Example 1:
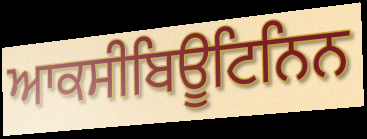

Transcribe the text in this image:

ਆਕਸੀਬਿਊਟਿਨਿਨ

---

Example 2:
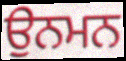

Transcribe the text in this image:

ਉਨਮਨ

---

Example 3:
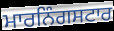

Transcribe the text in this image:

ਮਾਰਨਿੰਗਸਟਾਰ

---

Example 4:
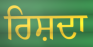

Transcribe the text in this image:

ਰਿਸ਼ਦਾ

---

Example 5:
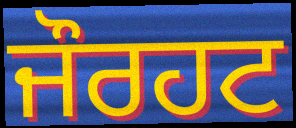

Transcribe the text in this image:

ਜੌਰਹਟ